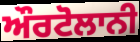
ਔਰਟੋਲਾਨੀ